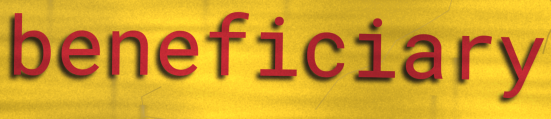
beneficiary